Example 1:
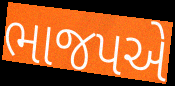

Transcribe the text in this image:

ભાજપએ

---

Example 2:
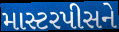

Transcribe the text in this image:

માસ્ટરપીસને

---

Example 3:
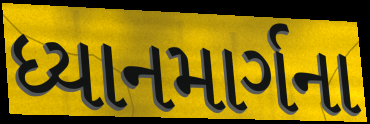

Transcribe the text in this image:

ધ્યાનમાર્ગના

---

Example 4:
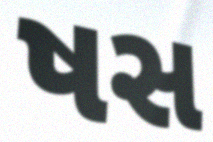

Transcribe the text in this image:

ષસ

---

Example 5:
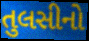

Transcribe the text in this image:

તુલસીનો